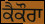
ਕੈਕੌਰਾ